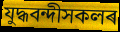
যুদ্ধবন্দীসকলৰ